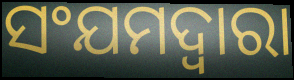
ସଂଯମଦ୍ୱାରା